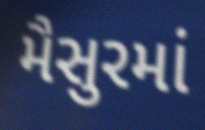
મૈસુરમાં